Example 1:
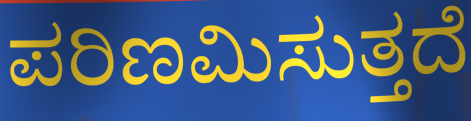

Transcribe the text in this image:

ಪರಿಣಮಿಸುತ್ತದೆ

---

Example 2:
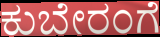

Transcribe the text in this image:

ಕುಬೇರಂಗೆ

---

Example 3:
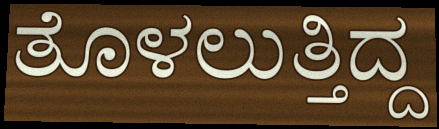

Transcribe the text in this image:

ತೊಳಲುತ್ತಿದ್ದ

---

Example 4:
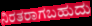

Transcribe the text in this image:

ನಿರತರಾಗಬಹುದು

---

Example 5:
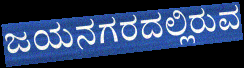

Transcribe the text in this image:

ಜಯನಗರದಲ್ಲಿರುವ